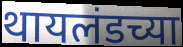
थायलंडच्या